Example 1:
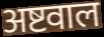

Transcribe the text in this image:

अष्टवाल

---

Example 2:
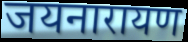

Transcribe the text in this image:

जयनारायण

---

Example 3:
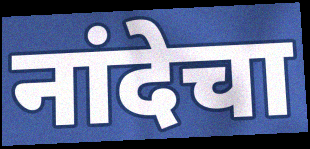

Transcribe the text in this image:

नांदेचा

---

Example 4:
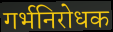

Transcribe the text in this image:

गर्भनिरोधक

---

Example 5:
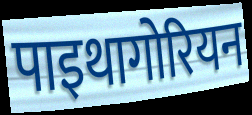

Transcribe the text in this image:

पाइथागोरियन